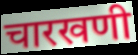
चारखणी